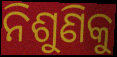
ନିଶୁଣିକୁ